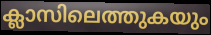
ക്ലാസിലെത്തുകയും